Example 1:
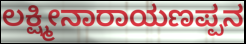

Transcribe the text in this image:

ಲಕ್ಷ್ಮೀನಾರಾಯಣಪ್ಪನ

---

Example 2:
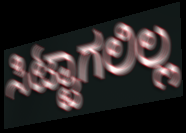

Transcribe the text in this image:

ಸಿಟ್ಟಾಗಲಿಲ್ಲ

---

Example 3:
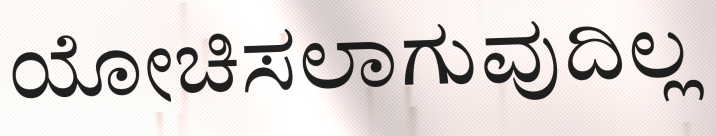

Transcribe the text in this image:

ಯೋಚಿಸಲಾಗುವುದಿಲ್ಲ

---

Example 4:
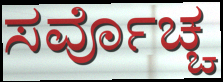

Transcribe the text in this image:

ಸರ್ವೊಚ್ಚ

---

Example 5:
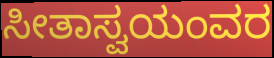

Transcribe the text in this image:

ಸೀತಾಸ್ವಯಂವರ